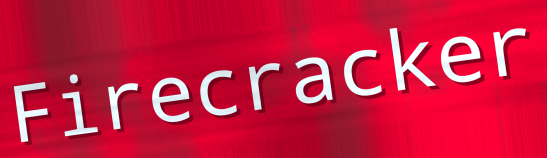
Firecracker